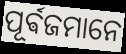
ପୂର୍ଵଜମାନେ